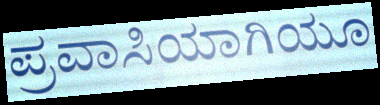
ಪ್ರವಾಸಿಯಾಗಿಯೂ